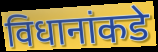
विधानांकडे